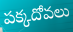
పక్కదోవలు